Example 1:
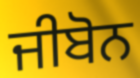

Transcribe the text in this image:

ਜੀਬੋਨ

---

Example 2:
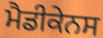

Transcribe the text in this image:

ਮੈਡੀਕੇਨਸ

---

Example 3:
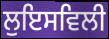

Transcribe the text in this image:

ਲੁਇਸਵਿਲੀ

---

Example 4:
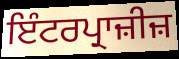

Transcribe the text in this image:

ਇੰਟਰਪ੍ਰਾਜ਼ੀਜ਼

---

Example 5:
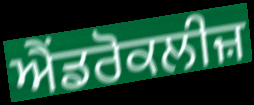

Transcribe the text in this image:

ਐਂਡਰੋਕਲੀਜ਼